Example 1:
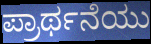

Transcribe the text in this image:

ಪ್ರಾರ್ಥನೆಯು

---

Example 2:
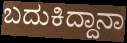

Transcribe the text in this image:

ಬದುಕಿದ್ದಾನಾ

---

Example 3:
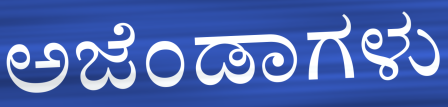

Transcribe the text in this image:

ಅಜೆಂಡಾಗಳು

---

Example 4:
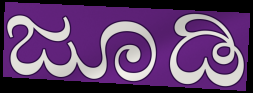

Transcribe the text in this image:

ಜೂಡಿ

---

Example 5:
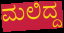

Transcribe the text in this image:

ಮಲಿದ್ದ